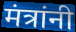
मंत्रांनी